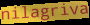
nilagriva